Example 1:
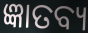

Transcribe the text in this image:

ଜ୍ଞାତବ୍ୟ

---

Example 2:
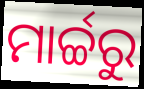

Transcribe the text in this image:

ମାର୍ଚ୍ଚରୁ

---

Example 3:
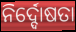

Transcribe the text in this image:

ନିର୍ଦ୍ଦୋଷତା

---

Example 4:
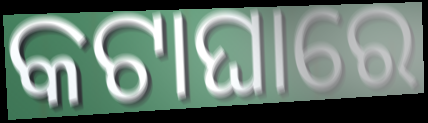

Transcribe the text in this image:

କଟାଘାରେ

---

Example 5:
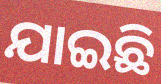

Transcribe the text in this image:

ଯାଇଛି